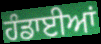
ਹੰਡਾਈਆਂ